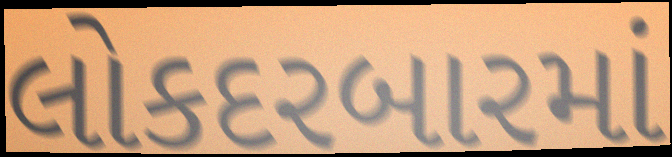
લોકદરબારમાં